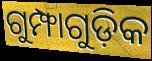
ଗୁମ୍ଫାଗୁଡ଼ିକ